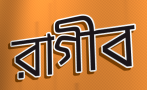
রাগীব